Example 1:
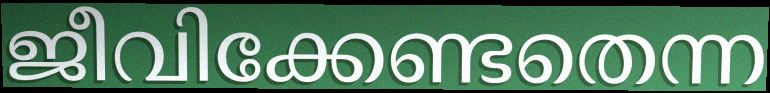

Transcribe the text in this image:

ജീവിക്കേണ്ടതെന്ന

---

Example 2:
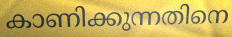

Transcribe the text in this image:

കാണിക്കുന്നതിനെ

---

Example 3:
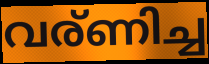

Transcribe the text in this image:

വര്ണിച്ച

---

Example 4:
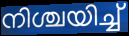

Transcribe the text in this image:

നിശ്ചയിച്ച്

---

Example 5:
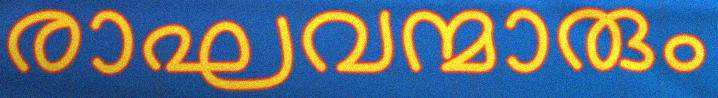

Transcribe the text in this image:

രാഘവന്മാരും